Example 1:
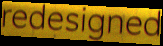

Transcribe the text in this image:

redesigned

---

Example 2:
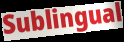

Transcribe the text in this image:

Sublingual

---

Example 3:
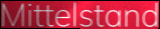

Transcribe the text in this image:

Mittelstand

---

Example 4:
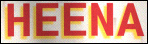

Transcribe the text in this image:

HEENA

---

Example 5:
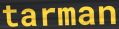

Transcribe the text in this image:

tarman